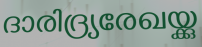
ദാരിദ്ര്യരേഖയ്ക്കു